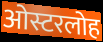
ओस्टरलोह